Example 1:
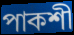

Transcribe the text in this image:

পাকশী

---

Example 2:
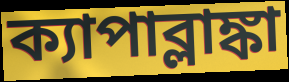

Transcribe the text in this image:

ক্যাপাব্লাঙ্কা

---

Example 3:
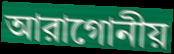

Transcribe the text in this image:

আরাগোনীয়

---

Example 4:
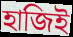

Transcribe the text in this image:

হাজিই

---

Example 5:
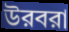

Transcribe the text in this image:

উরবরা